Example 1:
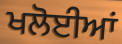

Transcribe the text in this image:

ਖਲੋਈਆਂ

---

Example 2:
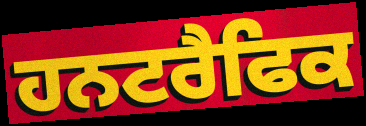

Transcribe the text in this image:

ਹਨਟਰੈਫਿਕ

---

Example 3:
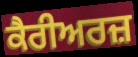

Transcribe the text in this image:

ਕੈਰੀਅਰਜ਼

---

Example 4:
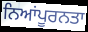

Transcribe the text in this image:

ਨਿਆਂਪੂਰਨਤਾ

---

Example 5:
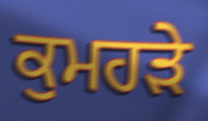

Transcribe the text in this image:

ਕੁਮਹੜੇ